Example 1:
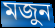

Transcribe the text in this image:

মজুন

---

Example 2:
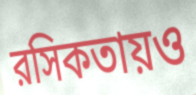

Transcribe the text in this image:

রসিকতায়ও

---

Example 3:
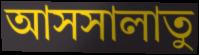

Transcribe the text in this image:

আসসালাতু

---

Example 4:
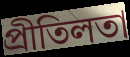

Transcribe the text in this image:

প্রীতিলতা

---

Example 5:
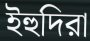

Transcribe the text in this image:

ইহুদিরা